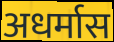
अधर्मास